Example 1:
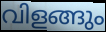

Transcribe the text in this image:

വിളങ്ങും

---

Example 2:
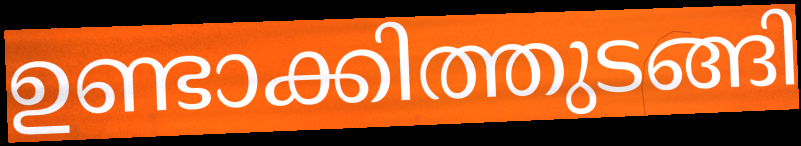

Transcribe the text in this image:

ഉണ്ടാക്കിത്തുടങ്ങി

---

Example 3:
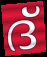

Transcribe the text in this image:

ദ്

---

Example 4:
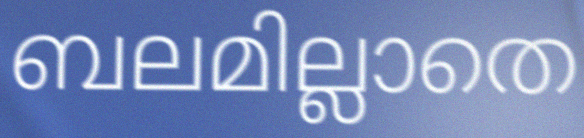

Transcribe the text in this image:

ബലമില്ലാതെ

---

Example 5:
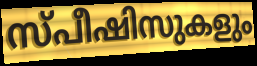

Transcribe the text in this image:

സ്പീഷിസുകളും